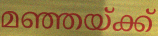
മഞ്ഞയ്ക്ക്